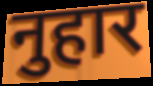
नुहार